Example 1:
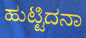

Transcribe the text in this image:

ಹುಟ್ಟಿದನಾ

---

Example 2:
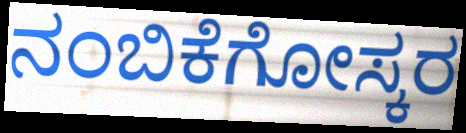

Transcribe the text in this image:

ನಂಬಿಕೆಗೋಸ್ಕರ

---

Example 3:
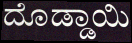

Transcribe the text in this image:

ದೊಡ್ಡಾಯಿ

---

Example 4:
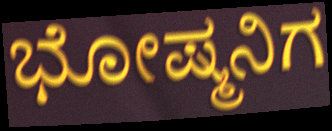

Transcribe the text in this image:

ಭೋಷ್ಮನಿಗ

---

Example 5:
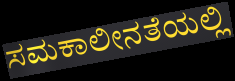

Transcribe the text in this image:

ಸಮಕಾಲೀನತೆಯಲ್ಲಿ